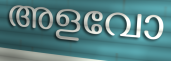
അളവോ